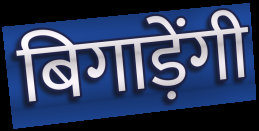
बिगाड़ेंगी